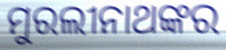
ମୁରଲୀନାଥଙ୍କର